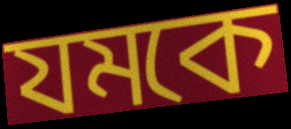
যমকে